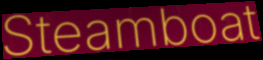
Steamboat